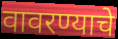
वावरण्याचे